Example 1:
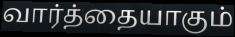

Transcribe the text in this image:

வார்த்தையாகும்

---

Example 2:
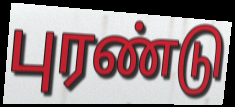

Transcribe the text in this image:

புரண்டு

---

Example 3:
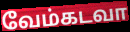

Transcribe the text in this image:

வேம்கடவா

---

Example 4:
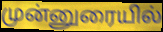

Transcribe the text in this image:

முன்னுரையில்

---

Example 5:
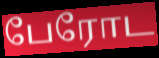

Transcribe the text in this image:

பேரோட